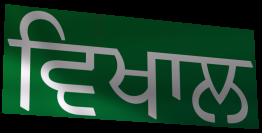
ਵਿਖਾਲ